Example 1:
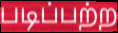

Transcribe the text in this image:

படிப்பற்ற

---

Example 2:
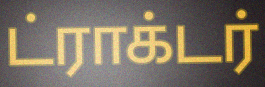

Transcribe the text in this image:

ட்ராக்டர்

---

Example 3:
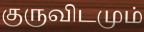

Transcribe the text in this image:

குருவிடமும்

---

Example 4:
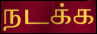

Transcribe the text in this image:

நடக்க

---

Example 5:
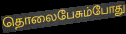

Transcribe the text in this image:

தொலைபேசும்போது